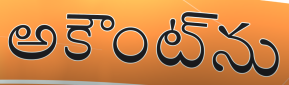
అకౌంట్‌ను